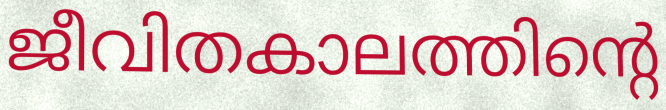
ജീവിതകാലത്തിന്റെ